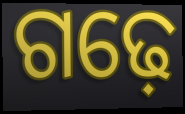
ଗଢ଼େ